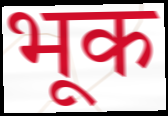
भूक